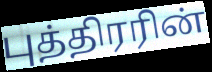
புத்திரரின்